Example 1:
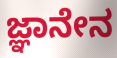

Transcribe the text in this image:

ಜ್ಞಾನೇನ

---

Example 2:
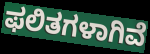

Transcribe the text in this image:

ಫಲಿತಗಳಾಗಿವೆ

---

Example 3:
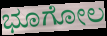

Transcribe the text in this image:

ಭೂಗೋಲ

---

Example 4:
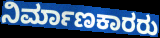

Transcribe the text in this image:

ನಿರ್ಮಾಣಕಾರರು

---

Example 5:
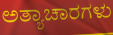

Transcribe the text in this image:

ಅತ್ಯಾಚಾರಗಳು